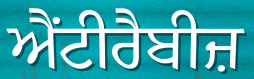
ਐਂਟੀਰੈਬੀਜ਼